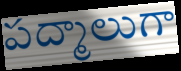
పద్మాలుగా